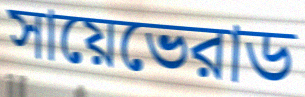
সায়েভেরাড